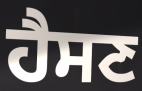
ਹੈਸਣ